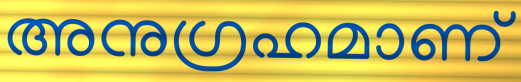
അനുഗ്രഹമാണ്